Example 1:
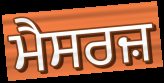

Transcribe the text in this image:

ਮੈਸਰਜ਼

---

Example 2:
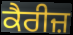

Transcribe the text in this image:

ਕੈਰੀਜ਼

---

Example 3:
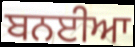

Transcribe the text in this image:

ਬਨਈਆ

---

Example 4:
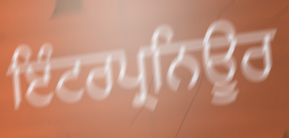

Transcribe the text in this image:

ਇੰਟਰਪ੍ਰਨਿਊਰ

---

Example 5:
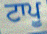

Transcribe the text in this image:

ਟਾਪੂ